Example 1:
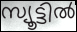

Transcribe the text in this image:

സ്യൂട്ടിൽ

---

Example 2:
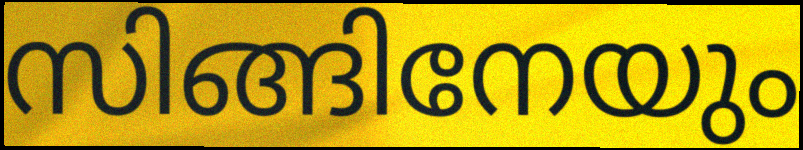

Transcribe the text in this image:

സിങ്ങിനേയും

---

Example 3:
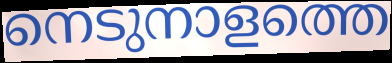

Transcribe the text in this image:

നെടുനാളത്തെ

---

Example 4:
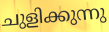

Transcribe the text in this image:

ചുളിക്കുന്നു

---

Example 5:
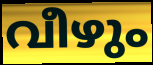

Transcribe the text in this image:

വീഴും